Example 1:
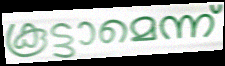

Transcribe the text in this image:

കൂട്ടാമെന്ന്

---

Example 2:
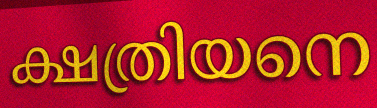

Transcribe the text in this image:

ക്ഷത്രിയനെ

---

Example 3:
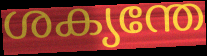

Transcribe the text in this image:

ശക്യന്തേ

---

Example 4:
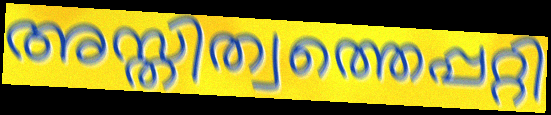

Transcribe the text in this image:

അസ്തിത്വത്തെപ്പറ്റി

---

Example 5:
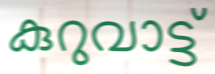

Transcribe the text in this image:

കുറുവാട്ട്